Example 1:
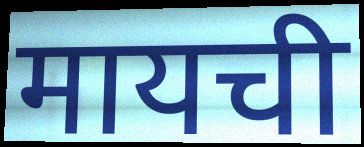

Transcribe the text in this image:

मायची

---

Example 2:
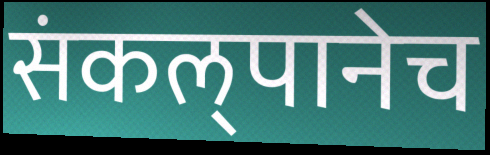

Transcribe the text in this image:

संकल्पानेच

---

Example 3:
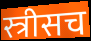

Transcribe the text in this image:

स्त्रीसच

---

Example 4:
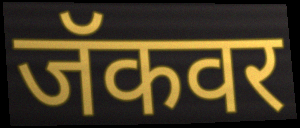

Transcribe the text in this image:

जॅकवर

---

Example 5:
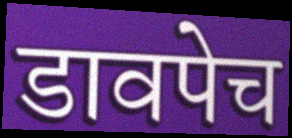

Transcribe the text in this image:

डावपेच